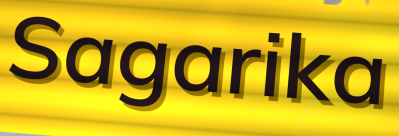
Sagarika